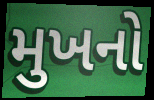
મુખનો